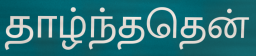
தாழ்ந்ததென்